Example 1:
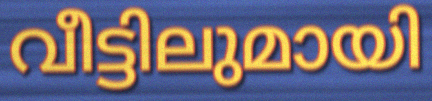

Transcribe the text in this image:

വീട്ടിലുമായി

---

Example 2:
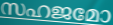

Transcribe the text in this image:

സഹജമോ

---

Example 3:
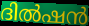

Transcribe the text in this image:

ദിൽഷൻ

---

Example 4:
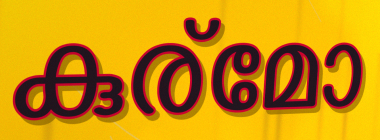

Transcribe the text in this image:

കുര്മോ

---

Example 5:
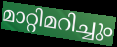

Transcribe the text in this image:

മാറ്റിമറിച്ചും